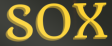
SOX